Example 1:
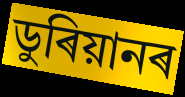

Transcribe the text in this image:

ডুৰিয়ানৰ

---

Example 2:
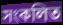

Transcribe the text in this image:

সংকলিত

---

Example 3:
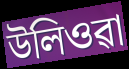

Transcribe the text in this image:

উলিওৱা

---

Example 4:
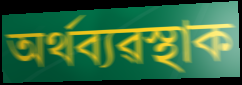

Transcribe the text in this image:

অৰ্থব্যৱস্থাক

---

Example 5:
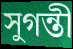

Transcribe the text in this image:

সুগন্তী